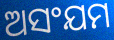
ଅସଂଯମ